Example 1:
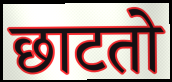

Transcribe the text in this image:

छाटतो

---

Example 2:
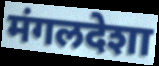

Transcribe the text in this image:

मंगलदेशा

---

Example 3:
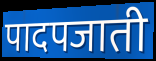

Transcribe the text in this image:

पादपजाती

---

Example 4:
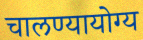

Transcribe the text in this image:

चालण्यायोग्य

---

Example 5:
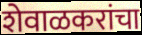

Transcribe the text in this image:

शेवाळकरांचा